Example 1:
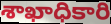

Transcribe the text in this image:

శాఖాధికారి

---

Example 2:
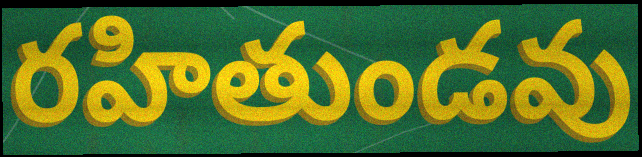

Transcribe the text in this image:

రహితుండవు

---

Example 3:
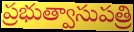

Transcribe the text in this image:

ప్రభుత్వాసుపత్రి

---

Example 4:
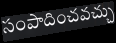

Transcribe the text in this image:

సంపాదించవచ్చు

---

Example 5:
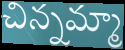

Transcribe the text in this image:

చిన్నమ్మా